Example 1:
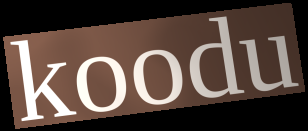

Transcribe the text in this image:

koodu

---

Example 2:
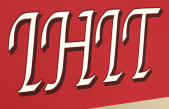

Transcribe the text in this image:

IHIT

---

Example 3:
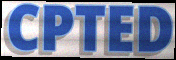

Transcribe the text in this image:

CPTED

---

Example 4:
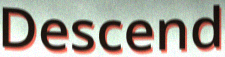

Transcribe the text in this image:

Descend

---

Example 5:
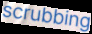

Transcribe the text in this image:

scrubbing